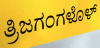
ತ್ರಿಜಗಂಗಳೊಳ್